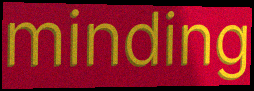
minding